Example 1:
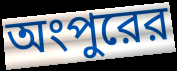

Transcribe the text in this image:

অংপুরের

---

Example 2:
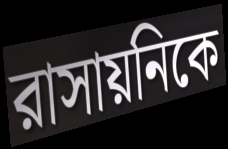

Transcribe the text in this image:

রাসায়নিকে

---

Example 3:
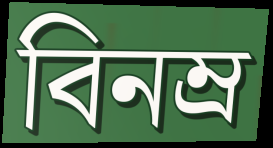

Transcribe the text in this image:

বিনম্র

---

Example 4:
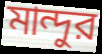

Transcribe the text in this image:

মান্দুর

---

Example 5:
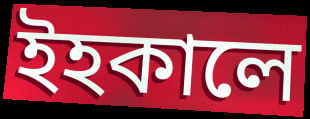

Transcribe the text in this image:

ইহকালে